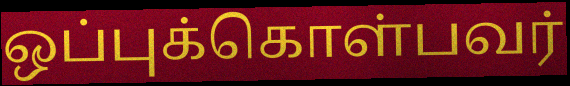
ஒப்புக்கொள்பவர்